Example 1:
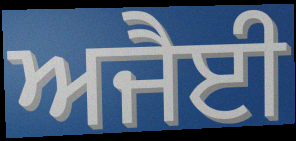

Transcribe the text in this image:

ਅਜੈਈ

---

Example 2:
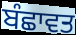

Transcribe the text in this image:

ਬੰਛਾਵਤ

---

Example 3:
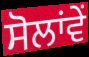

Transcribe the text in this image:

ਸੋਲਾਂਵੇਂ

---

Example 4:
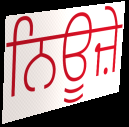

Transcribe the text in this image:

ਨਿਊਜ਼ੇ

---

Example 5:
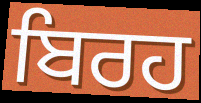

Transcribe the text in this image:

ਬਿਰਹ